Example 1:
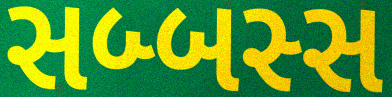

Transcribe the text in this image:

સબ્બસ્સ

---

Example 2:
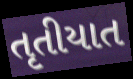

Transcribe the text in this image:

તૃતીયાત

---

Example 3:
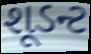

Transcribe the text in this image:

શૂડન્ટ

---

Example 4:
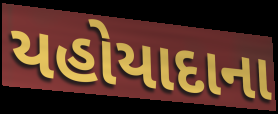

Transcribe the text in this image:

યહોયાદાના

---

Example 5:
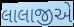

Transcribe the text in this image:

લાલાજીએ